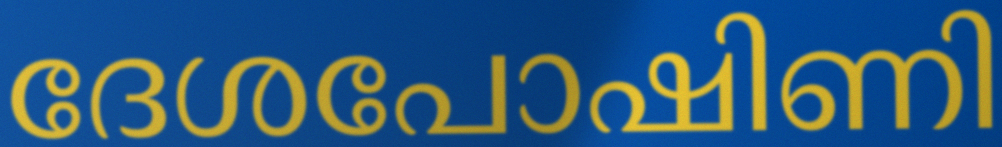
ദേശപോഷിണി